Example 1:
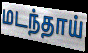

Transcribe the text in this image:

மடந்தாய்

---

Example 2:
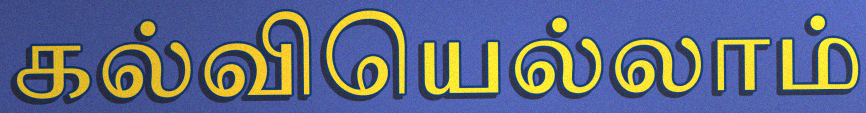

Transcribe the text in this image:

கல்வியெல்லாம்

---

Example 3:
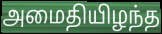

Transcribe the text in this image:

அமைதியிழந்த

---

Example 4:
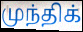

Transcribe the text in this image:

முந்திக்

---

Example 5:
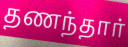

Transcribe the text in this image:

தணந்தார்